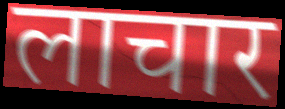
लाचार